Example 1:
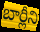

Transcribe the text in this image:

బార్లీని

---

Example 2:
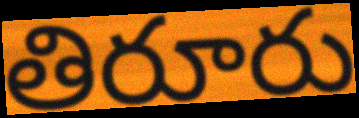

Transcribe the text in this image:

తిరూరు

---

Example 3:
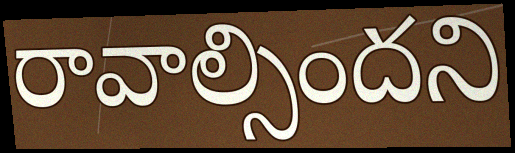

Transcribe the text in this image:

రావాల్సిందని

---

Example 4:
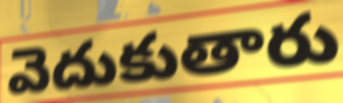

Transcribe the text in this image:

వెదుకుతారు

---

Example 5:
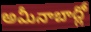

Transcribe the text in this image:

అమీనాబాద్లో